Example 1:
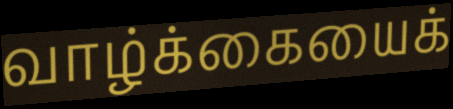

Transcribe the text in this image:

வாழ்க்கையைக்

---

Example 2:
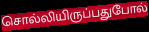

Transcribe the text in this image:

சொல்லியிருப்பதுபோல்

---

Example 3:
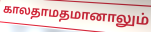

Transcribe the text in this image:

காலதாமதமானாலும்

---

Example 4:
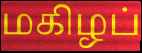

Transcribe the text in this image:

மகிழப்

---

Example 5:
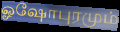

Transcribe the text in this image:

ஓஷோபுரமும்